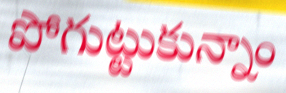
పోగుట్టుకున్నాం